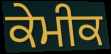
ਕੇਮੀਕ